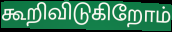
கூறிவிடுகிறோம்